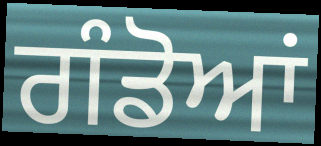
ਗੰਡੋਆਂ